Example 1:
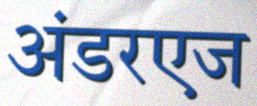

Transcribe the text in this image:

अंडरएज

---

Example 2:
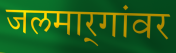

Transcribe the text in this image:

जलमार्गांवर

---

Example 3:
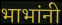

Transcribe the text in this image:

भाभांनी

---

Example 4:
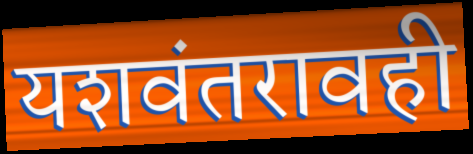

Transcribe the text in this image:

यशवंतरावही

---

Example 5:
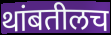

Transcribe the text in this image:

थांबतीलच